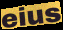
eius